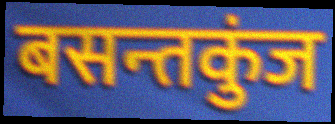
बसन्तकुंज